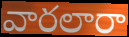
వారలారా